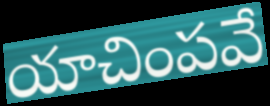
యాచింపవే